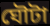
ঘৌটা